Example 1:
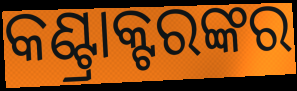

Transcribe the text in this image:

କଣ୍ଟ୍ରାକ୍ଟରଙ୍କର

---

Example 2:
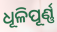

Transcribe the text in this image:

ଧୂଳିପୂର୍ଣ୍ଣ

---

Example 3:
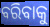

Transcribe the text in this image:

ବରିବାକୁ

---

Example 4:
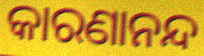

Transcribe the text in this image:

କାରଣାନନ୍ଦ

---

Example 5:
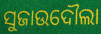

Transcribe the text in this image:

ସୁଜାଉଦୌଲା